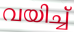
വയിച്ച്